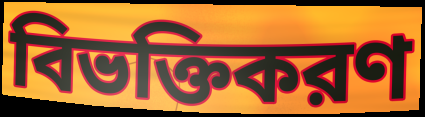
বিভক্তিকরণ